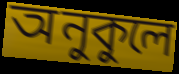
অনুকুলে